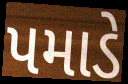
પમાડે